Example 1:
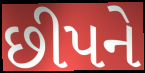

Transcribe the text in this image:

છીપને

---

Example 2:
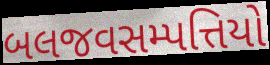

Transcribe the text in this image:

બલજવસમ્પત્તિયો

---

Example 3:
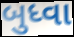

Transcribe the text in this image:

બુધ્વા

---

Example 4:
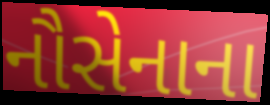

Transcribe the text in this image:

નૌસેનાના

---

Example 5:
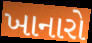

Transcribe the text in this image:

ખાનારો